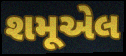
શમૂએલ